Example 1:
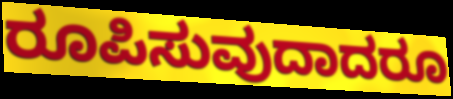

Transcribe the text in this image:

ರೂಪಿಸುವುದಾದರೂ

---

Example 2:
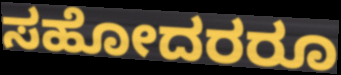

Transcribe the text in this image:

ಸಹೋದರರೂ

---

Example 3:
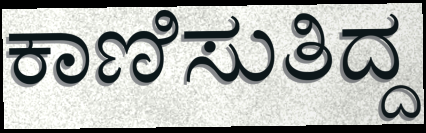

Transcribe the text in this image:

ಕಾಣಿಸುತಿದ್ದ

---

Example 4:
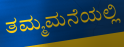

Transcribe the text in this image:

ತಮ್ಮಮನೆಯಲ್ಲಿ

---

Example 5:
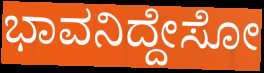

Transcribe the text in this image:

ಭಾವನಿದ್ದೇಸೋ